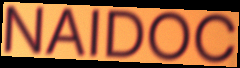
NAIDOC